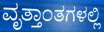
ವೃತ್ತಾಂತಗಳಲ್ಲಿ